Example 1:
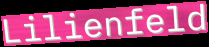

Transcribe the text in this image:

Lilienfeld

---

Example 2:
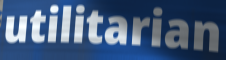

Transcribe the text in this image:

utilitarian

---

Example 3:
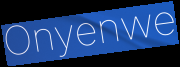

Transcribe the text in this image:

Onyenwe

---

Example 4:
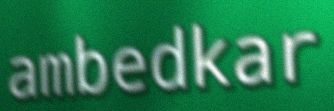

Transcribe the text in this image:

ambedkar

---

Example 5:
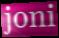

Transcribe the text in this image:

joni